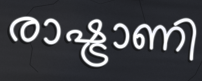
രാഷ്ട്രാണി